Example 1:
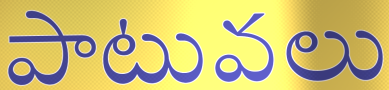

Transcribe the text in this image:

పాటువలు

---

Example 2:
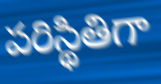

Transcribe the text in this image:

పరిస్థితిగా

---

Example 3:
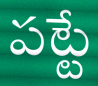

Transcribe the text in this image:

పట్టే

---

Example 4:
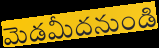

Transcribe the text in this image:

మెడమీదనుండి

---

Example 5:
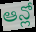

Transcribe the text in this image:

ఆన్లో